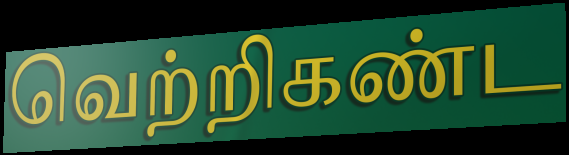
வெற்றிகண்ட